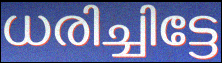
ധരിച്ചിട്ടേ